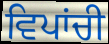
ਵਿਪਾਂਚੀ